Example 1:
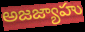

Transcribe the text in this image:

అజజ్యాహు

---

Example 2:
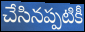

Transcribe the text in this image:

చేసినప్పటికీ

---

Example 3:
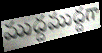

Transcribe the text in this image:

ముద్దముద్దగా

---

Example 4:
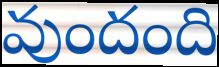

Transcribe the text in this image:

వుందంది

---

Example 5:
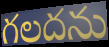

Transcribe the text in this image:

గలదను